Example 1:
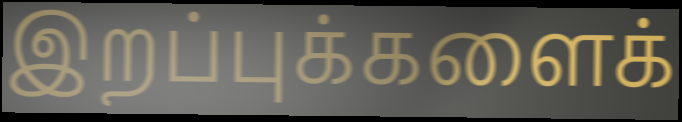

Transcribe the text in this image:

இறப்புக்களைக்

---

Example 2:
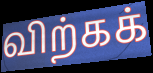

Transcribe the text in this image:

விற்கக்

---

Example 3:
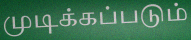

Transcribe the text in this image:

முடிக்கப்படும்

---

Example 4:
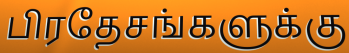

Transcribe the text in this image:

பிரதேசங்களுக்கு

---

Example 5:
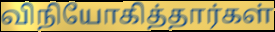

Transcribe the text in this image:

விநியோகித்தார்கள்